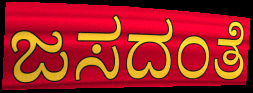
ಜಸದಂತೆ